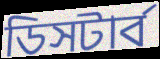
ডিসটার্ব